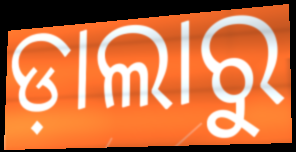
ଡ଼ାଲାରୁ